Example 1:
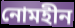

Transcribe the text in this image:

নোমহীন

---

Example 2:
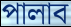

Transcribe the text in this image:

পালাব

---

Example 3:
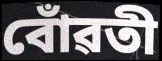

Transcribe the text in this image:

বোঁৱতী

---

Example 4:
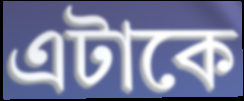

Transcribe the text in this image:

এটাকে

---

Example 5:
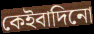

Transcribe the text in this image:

কেইবাদিনো